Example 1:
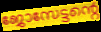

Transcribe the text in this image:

ജോസേട്ടന്റെ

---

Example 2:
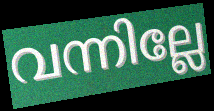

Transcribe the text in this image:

വന്നില്ലേ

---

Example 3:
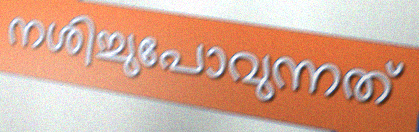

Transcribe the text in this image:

നശിച്ചുപോവുന്നത്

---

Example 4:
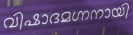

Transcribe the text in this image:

വിഷാദമഗ്നനായി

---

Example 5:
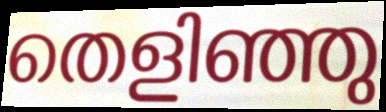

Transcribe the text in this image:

തെളിഞ്ഞു